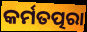
କର୍ମତତ୍ପରା